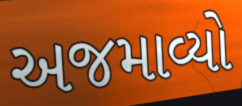
અજમાવ્યો